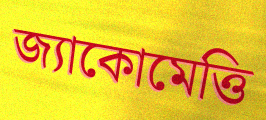
জ্যাকোমেত্তি